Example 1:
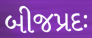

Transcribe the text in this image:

બીજપ્રદઃ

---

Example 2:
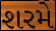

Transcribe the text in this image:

શરમે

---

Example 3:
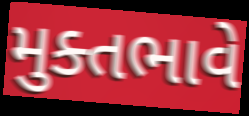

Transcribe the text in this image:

મુક્તભાવે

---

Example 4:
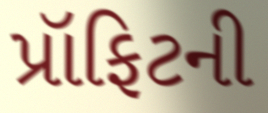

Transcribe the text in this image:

પ્રૉફિટની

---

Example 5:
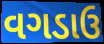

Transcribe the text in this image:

વગડાઉ